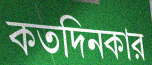
কতদিনকার